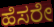
ಹೆಸರೇ